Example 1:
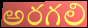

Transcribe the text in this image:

అరగలి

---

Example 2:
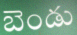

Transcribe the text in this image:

బెండు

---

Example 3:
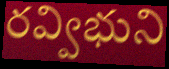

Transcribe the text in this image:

రవ్విభుని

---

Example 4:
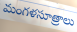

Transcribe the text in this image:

మంగళసూత్రాలు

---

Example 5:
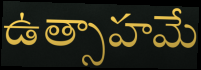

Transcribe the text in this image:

ఉత్సాహమే